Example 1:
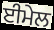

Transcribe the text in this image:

ਈਮੇਲ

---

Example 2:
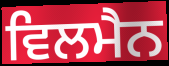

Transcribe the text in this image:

ਵਿਲਮੈਨ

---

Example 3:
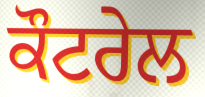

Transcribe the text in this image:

ਕੌਟਰੇਲ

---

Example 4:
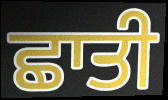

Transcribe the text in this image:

ਛਾਤੀ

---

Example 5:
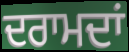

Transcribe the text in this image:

ਦਰਾਮਦਾਂ